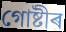
গোষ্টীৰ